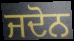
ਜਦੋਨ